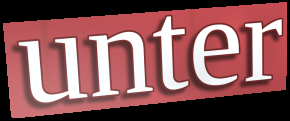
unter